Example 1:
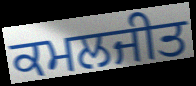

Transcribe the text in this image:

ਕਮਲਜੀਤ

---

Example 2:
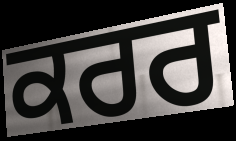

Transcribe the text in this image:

ਕਰਰ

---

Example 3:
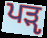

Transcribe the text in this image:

ਪੜੵ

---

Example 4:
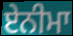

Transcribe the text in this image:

ਏਨੀਮਾ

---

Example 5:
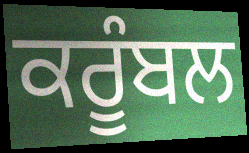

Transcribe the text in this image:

ਕਰੂੰਬਲ